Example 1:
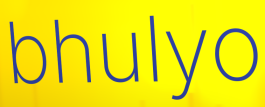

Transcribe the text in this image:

bhulyo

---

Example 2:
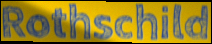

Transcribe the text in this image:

Rothschild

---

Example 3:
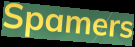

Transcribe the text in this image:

Spamers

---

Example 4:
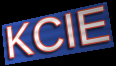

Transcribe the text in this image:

KCIE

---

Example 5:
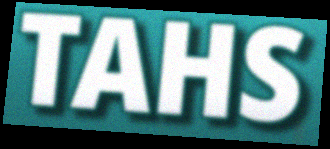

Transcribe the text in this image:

TAHS